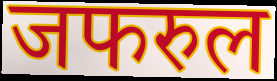
जफरुल